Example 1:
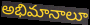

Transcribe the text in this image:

అభిమానాలూ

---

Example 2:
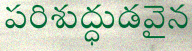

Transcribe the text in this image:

పరిశుద్ధుడవైన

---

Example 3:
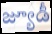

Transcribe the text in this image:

జ్యూడీ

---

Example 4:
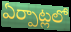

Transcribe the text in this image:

ఏర్పాట్లలో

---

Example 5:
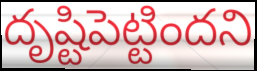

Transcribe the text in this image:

దృష్టిపెట్టిందని